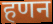
हणन